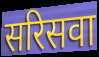
सरिसवा